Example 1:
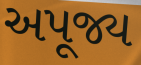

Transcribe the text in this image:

અપૂજ્ય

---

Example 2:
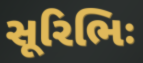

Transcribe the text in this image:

સૂરિભિઃ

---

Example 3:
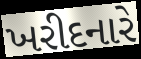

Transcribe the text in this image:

ખરીદનારે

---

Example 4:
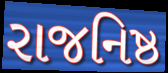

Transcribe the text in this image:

રાજનિષ્ઠ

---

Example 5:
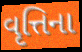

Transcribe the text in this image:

વૃત્તિના